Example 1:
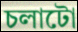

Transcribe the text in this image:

চলাটো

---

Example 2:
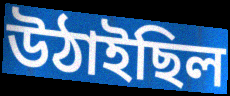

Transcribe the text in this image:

উঠাইছিল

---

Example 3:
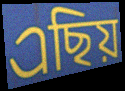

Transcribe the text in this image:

এছিয়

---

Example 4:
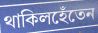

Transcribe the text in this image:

থাকিলহেঁতেন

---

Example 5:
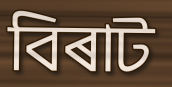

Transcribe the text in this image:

বিৰাট